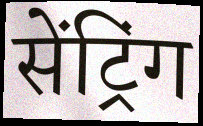
सेंट्रिंग